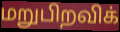
மறுபிறவிக்